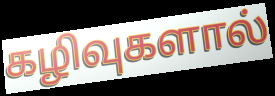
கழிவுகளால்